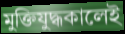
মুক্তিযুদ্ধকালেই